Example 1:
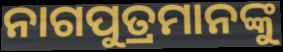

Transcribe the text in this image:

ନାଗପୁତ୍ରମାନଙ୍କୁ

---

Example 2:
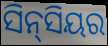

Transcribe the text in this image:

ସିନ୍‌ସିୟର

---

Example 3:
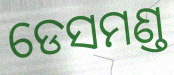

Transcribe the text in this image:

ଡେସମଣ୍ଡ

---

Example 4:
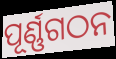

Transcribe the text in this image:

ପୂର୍ଣ୍ଣଗଠନ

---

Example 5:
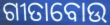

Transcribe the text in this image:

ଗୀତାବୋଉ